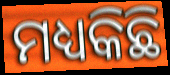
ମଧ୍ୟକିଛି